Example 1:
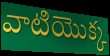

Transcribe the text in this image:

వాటియొక్క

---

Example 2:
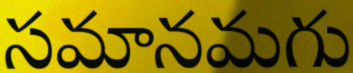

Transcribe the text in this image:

సమానమగు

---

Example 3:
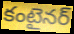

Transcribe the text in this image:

కంటైనర్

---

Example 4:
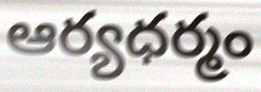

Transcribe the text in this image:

ఆర్యధర్మం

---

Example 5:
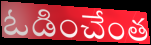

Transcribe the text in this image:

ఓడించేంత